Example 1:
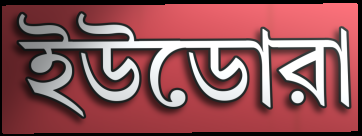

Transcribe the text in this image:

ইউডোরা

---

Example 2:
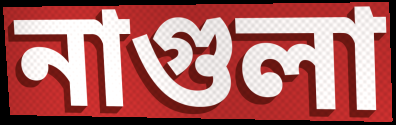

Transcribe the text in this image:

নাগুলা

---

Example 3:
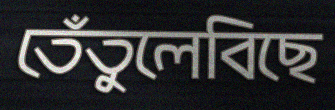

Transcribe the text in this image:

তেঁতুলেবিছে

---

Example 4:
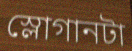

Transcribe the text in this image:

স্লোগানটা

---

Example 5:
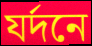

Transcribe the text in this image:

যর্দনে